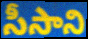
సీసాని